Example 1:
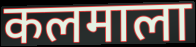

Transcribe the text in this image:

कलमाला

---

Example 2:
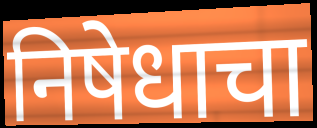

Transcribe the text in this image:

निषेधाचा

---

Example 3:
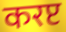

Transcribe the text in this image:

करप्ट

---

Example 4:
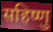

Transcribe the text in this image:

सहिष्णु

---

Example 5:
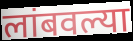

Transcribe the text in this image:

लांबवल्या